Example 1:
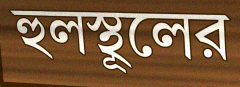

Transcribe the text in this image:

হুলস্থূলের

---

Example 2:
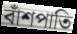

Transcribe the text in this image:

বাঁশপাতি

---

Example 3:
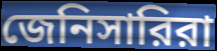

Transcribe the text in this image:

জেনিসারিরা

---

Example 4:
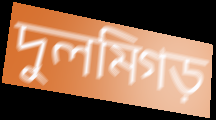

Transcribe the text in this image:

দুলমিগড়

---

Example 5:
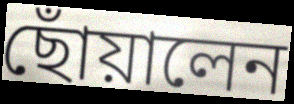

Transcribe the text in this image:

ছোঁয়ালেন